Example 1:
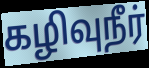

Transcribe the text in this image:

கழிவுநீர்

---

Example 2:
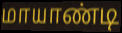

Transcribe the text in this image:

மாயாண்டி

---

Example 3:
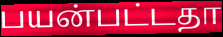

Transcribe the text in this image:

பயன்பட்டதா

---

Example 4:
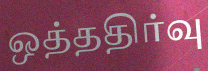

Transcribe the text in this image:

ஒத்ததிர்வு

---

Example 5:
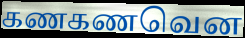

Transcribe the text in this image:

கணகணவென